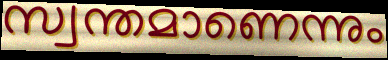
സ്വന്തമാണെന്നും